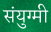
संयुग्मी